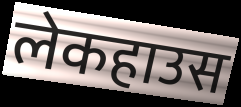
लेकहाउस